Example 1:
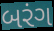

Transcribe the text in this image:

બરંગ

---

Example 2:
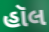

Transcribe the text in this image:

હૉલ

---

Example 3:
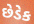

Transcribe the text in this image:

છેડેક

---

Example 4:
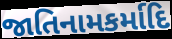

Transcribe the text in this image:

જાતિનામકર્માદિ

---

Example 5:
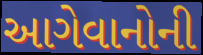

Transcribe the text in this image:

આગેવાનોની